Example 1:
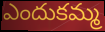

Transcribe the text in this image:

ఎందుకమ్మ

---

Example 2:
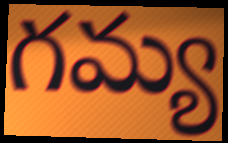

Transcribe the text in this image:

గమ్య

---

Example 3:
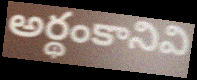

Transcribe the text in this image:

అర్థంకానివి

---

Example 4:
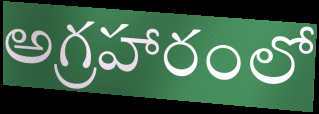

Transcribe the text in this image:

అగ్రహారంలో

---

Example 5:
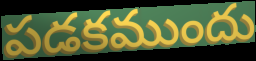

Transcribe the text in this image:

పడకముందు